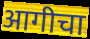
आगीचा